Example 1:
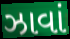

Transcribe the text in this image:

ઝાવાં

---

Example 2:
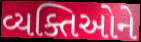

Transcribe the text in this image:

વ્યક્તિઓને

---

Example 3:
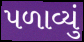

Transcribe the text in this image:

પળાવ્યું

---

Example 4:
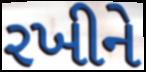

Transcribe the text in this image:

રખીને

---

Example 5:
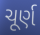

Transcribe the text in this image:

ચૂર્ણ